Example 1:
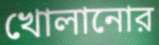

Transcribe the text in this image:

খোলানোর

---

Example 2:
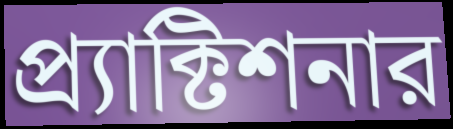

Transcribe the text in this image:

প্র্যাক্টিশনার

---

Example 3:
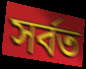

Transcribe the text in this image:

সর্বত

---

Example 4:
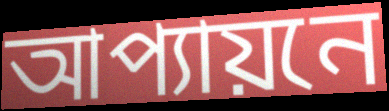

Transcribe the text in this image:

আপ্যায়নে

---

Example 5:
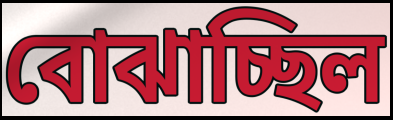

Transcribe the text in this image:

বোঝাচ্ছিল